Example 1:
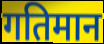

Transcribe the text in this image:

गतिमान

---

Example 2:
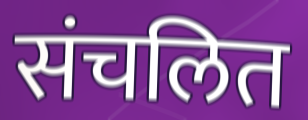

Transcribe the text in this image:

संचलित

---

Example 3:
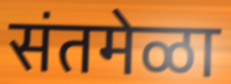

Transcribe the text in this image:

संतमेळा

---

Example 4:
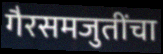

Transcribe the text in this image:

गैरसमजुतींचा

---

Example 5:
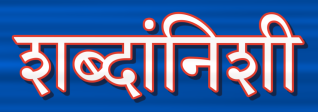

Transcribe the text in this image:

शब्दांनिशी